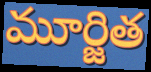
మూర్జిత